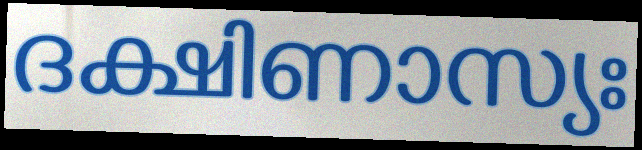
ദക്ഷിണാസ്യഃ